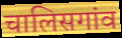
चालिसगांव